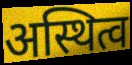
अस्थित्व